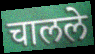
चालले